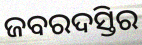
ଜବରଦସ୍ତିର